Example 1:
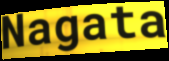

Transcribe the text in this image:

Nagata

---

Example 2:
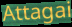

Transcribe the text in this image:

Attagai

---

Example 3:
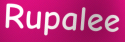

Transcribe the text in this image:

Rupalee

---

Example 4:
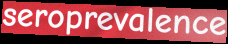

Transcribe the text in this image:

seroprevalence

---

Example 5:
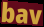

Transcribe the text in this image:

bav